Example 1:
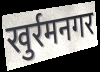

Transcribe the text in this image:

खुर्रमनगर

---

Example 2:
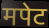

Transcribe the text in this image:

मपेट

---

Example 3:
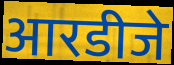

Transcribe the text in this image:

आरडीजे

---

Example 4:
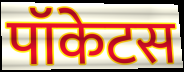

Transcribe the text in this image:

पॉकेटस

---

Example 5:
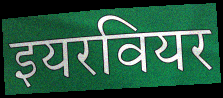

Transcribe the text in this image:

इयरवियर